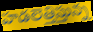
హడలెత్తిస్తున్న